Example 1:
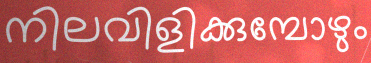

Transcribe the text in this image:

നിലവിളിക്കുമ്പോഴും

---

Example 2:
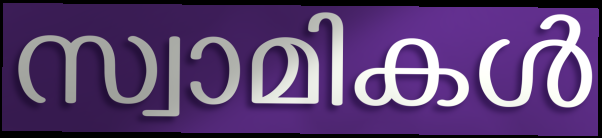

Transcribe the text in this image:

സ്വാമികൾ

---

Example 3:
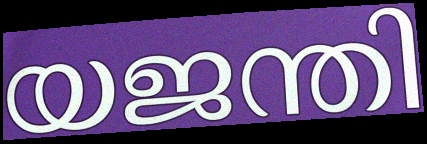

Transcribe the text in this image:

യജന്തി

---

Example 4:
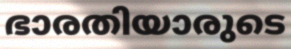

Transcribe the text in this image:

ഭാരതിയാരുടെ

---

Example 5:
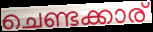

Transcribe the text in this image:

ചെണ്ടക്കാര്